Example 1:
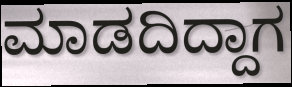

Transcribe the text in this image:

ಮಾಡದಿದ್ದಾಗ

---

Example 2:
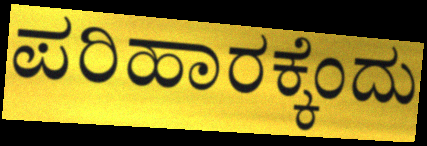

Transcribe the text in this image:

ಪರಿಹಾರಕ್ಕೆಂದು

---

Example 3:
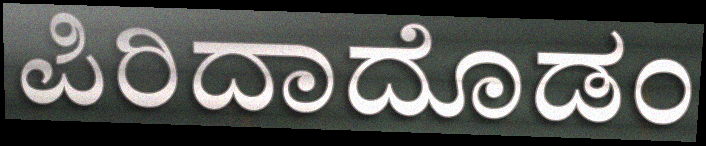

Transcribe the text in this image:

ಪಿರಿದಾದೊಡಂ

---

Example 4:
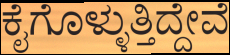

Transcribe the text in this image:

ಕೈಗೊಳ್ಳುತ್ತಿದ್ದೇವೆ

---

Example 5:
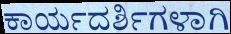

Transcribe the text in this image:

ಕಾರ್ಯದರ್ಶಿಗಳಾಗಿ